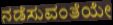
ನಡೆಸುವಂತೆಯೇ